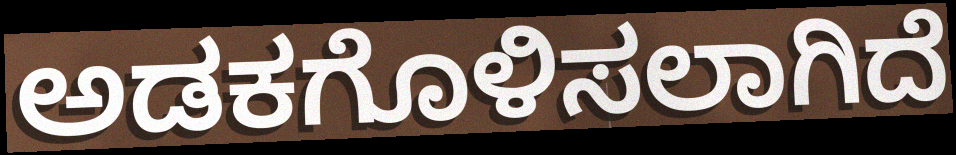
ಅಡಕಗೊಳಿಸಲಾಗಿದೆ